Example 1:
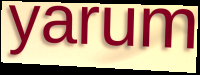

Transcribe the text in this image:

yarum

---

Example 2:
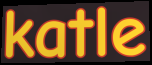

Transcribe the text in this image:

katle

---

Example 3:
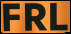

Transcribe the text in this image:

FRL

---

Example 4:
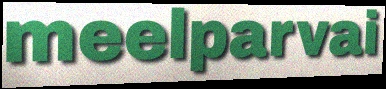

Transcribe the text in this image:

meelparvai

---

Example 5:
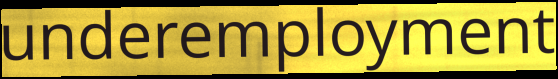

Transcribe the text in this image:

underemployment